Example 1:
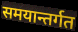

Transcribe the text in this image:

समयान्तर्गत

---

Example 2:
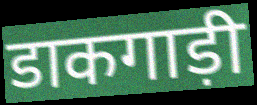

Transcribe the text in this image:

डाकगाड़ी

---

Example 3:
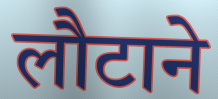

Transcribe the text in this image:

लौटाने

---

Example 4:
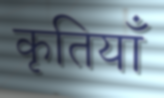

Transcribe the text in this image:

कृतियाँ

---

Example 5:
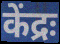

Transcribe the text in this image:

केंद्रः